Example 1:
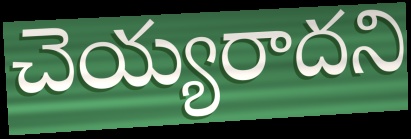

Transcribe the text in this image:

చెయ్యరాదని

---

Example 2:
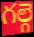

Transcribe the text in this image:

గల్గె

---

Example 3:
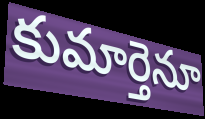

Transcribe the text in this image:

కుమార్తెనూ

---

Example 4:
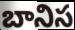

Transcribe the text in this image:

బానిస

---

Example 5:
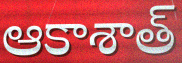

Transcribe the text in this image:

ఆకాశాత్